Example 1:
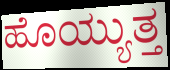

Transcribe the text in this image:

ಹೊಯ್ಯುತ್ತ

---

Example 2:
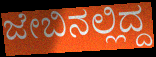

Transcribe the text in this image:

ಜೇಬಿನಲ್ಲಿದ್ದ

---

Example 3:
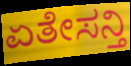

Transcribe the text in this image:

ಏತೇಸನ್ತಿ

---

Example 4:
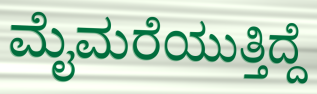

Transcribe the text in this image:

ಮೈಮರೆಯುತ್ತಿದ್ದೆ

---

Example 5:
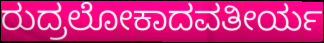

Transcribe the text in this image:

ರುದ್ರಲೋಕಾದವತೀರ್ಯ